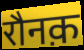
रौनक़